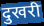
दुखरी